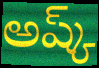
అష్క్